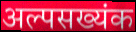
अल्पसख्यंक